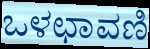
ಒಳಛಾವಣಿ